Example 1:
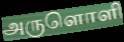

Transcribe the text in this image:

அருளொளி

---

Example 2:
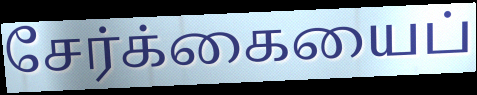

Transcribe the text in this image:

சேர்க்கையைப்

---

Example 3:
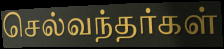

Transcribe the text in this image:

செல்வந்தர்கள்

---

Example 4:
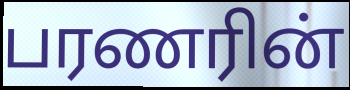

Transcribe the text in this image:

பரணரின்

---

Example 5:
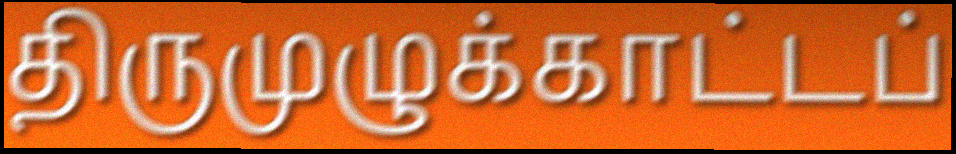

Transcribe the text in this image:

திருமுழுக்காட்டப்